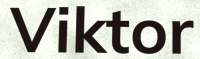
Viktor